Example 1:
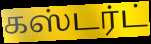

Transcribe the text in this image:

கஸ்டர்ட்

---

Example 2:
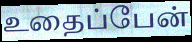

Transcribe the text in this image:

உதைப்பேன்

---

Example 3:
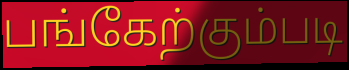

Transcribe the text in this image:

பங்கேற்கும்படி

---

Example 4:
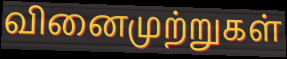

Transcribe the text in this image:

வினைமுற்றுகள்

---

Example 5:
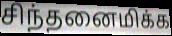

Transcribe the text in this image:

சிந்தனைமிக்க